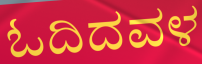
ಓದಿದವಳ